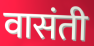
वासंती